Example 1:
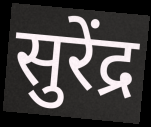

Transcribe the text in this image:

सुरेंद्र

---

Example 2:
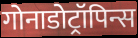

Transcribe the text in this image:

गोनाडोट्रॉपिन्स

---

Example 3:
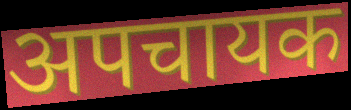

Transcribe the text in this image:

अपचायक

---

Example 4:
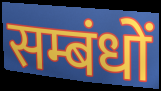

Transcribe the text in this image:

सम्बंधों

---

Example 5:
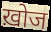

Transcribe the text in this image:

ख़ोज